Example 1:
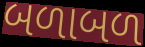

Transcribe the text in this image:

બળાબળ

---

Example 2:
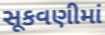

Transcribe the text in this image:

સૂકવણીમાં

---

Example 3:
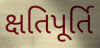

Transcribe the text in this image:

ક્ષતિપૂર્તિ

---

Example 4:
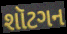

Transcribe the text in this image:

શૉટગન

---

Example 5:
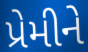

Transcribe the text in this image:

પ્રેમીને